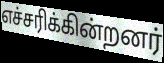
எச்சரிக்கின்றனர்